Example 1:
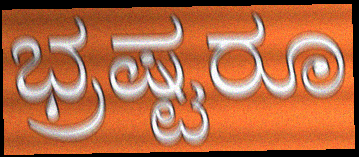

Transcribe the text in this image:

ಭ್ರಷ್ಟರೂ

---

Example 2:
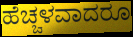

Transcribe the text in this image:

ಹೆಚ್ಚಳವಾದರೂ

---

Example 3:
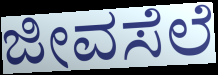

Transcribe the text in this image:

ಜೀವಸೆಲೆ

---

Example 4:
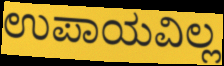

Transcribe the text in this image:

ಉಪಾಯವಿಲ್ಲ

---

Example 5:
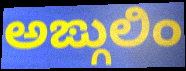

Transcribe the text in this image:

ಅಙ್ಗುಲಿಂ